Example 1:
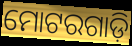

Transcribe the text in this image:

ମୋଟରଗାଡ଼ି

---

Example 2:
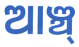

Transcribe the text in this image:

ଆଞ୍ଚ୍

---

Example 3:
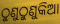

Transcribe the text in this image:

ଠୁଣୁଠୁଣୁକିଆ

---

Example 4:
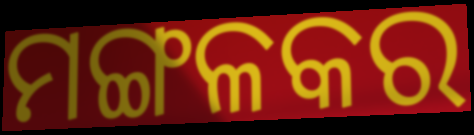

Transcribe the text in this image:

ମଙ୍ଗଳକର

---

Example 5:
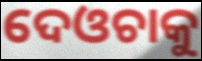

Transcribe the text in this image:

ଦେଓଚାକୁ